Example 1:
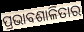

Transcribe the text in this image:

ପ୍ରଭାବଶାଳିତାର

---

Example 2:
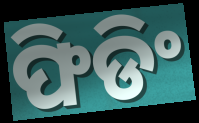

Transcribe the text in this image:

ଫିଡିଂ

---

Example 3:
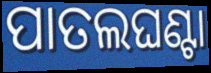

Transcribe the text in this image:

ପାତଲଘଣ୍ଟା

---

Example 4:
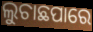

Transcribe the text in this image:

ଲୁଚାଛପାରେ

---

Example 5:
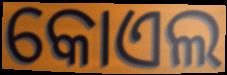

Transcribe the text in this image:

କୋଏଲ